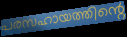
പരസഹായത്തിന്റെ